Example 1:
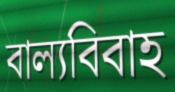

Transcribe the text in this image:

বাল্যবিবাহ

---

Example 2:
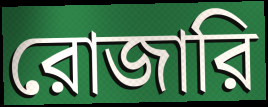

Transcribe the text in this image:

রোজারি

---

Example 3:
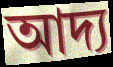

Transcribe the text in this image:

আদ্য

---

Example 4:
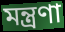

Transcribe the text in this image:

মন্ত্রণা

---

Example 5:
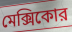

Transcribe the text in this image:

মেক্সিকোর